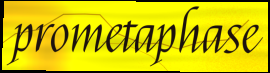
prometaphase